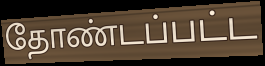
தோண்டப்பட்ட